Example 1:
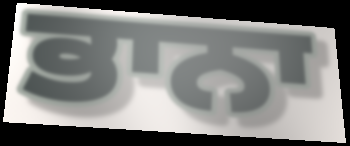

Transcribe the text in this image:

ਭਾਨਾ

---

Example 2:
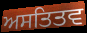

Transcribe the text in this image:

ਅਸਤਿਤਵ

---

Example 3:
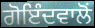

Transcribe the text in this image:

ਗੋਇੰਦਵਾਲੋਂ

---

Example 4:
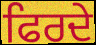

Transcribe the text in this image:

ਫਿਰਦੇ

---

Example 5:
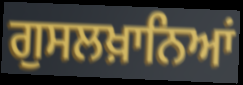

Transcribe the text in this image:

ਗੁਸਲਖ਼ਾਨਿਆਂ